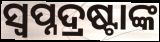
ସ୍ୱପ୍ନଦ୍ରଷ୍ଟାଙ୍କ